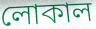
লোকাল